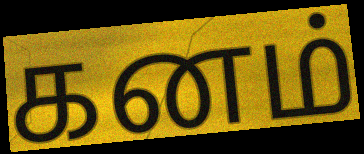
கனம்